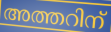
അത്തറിന്